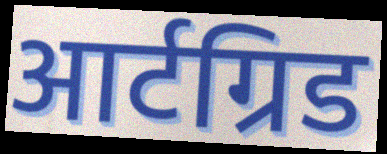
आर्टग्रिड